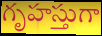
గృహస్తుగా